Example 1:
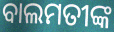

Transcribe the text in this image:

ବାଲମତୀଙ୍କ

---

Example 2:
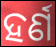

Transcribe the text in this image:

ହର୍ଣ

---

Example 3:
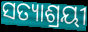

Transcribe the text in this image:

ସତ୍ୟାଶ୍ରୟୀ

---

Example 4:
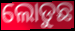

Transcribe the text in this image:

ଲୋଡୁଛ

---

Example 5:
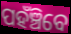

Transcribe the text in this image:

ପହଁଞ୍ଚିବେ